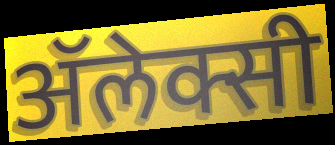
ॲलेक्सी